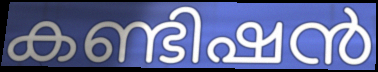
കണ്ടിഷൻ